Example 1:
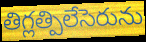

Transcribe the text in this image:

తిగ్లత్పిలేసెరును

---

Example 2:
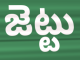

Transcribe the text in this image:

జెట్టు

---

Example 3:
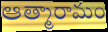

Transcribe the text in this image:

ఆత్మారామం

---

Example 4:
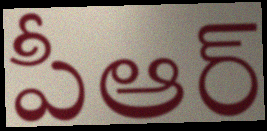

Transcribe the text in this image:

పీఆర్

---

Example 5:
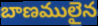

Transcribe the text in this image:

బాణములైన